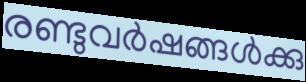
രണ്ടുവർഷങ്ങൾക്കു